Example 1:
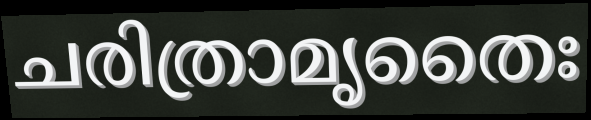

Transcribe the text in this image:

ചരിത്രാമൃതൈഃ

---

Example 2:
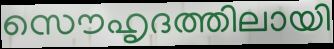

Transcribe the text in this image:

സൌഹൃദത്തിലായി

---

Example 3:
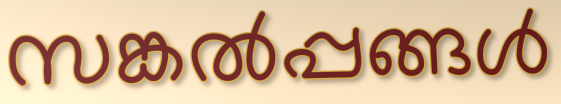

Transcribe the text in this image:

സങ്കൽപ്പങ്ങൾ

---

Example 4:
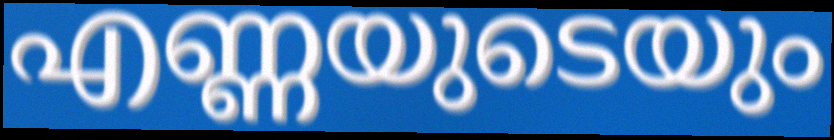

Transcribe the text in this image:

എണ്ണയുടെയും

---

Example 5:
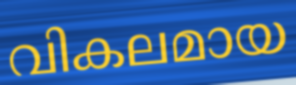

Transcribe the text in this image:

വികലമായ